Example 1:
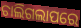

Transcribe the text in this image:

ଚାଲିଗଲାପରେ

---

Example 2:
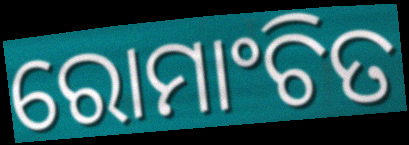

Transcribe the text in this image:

ରୋମାଂଚିତ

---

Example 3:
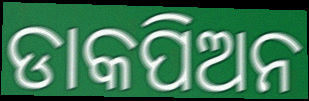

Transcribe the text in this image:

ଡାକପିଅନ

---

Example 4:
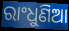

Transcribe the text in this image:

ରାଂଧୁଣିଆ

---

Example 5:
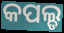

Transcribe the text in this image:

କପଲ୍ଡ